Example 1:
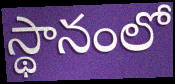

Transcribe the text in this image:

స్థానంలో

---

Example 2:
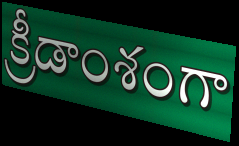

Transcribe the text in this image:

క్రీడాంశంగా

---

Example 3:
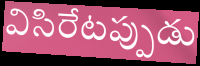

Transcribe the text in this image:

విసిరేటప్పుడు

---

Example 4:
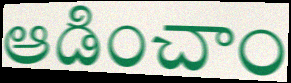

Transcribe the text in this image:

ఆడించాం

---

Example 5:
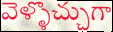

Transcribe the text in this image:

వెళ్ళొచ్చుగా